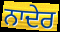
ਨਾਦੇਰ